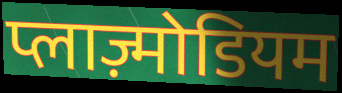
प्लाज़्मोडियम